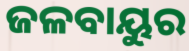
ଜଳବାୟୁର